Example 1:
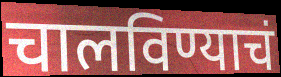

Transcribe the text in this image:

चालविण्याचं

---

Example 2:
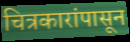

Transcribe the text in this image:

चित्रकारांपासून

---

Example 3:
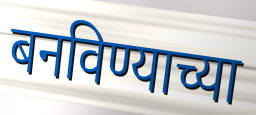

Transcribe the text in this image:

बनविण्याच्या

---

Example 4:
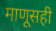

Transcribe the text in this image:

माणूसही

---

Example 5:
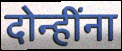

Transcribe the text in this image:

दोन्हींना